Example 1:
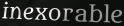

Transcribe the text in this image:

inexorable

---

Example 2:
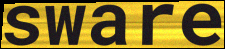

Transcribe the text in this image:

sware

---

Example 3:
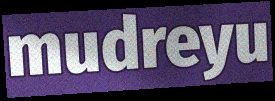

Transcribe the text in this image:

mudreyu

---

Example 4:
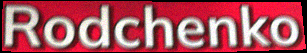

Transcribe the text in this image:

Rodchenko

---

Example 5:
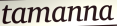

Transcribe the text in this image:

tamanna